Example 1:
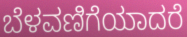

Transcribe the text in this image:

ಬೆಳವಣಿಗೆಯಾದರೆ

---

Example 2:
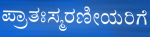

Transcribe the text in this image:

ಪ್ರಾತಃಸ್ಮರಣೀಯರಿಗೆ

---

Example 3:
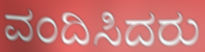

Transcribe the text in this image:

ವಂದಿಸಿದರು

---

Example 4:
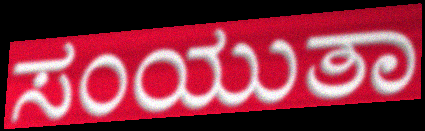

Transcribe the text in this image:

ಸಂಯುತಾ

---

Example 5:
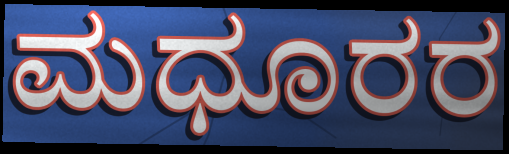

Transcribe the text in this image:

ಮಧೂರರ